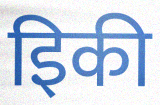
इिकी